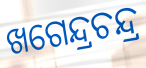
ଖଗେନ୍ଦ୍ରଚନ୍ଦ୍ର